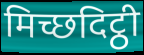
मिच्छदिट्ठी